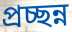
প্রচ্ছন্ন